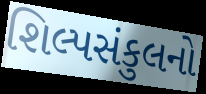
શિલ્પસંકુલનો